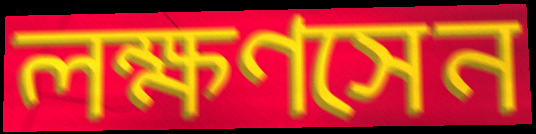
লক্ষণসেন